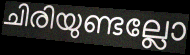
ചിരിയുണ്ടല്ലോ